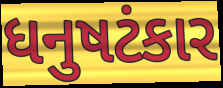
ધનુષટંકાર